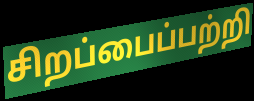
சிறப்பைப்பற்றி